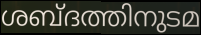
ശബ്ദത്തിനുടമ